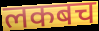
लकबच